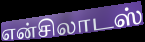
என்சிலாடஸ்